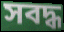
সবদ্ধ